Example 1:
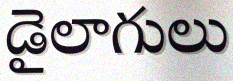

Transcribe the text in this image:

డైలాగులు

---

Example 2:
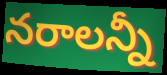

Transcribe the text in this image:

నరాలన్నీ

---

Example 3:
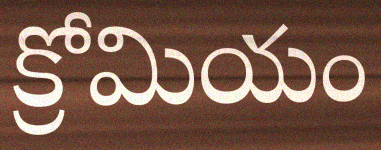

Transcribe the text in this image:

క్రోమియం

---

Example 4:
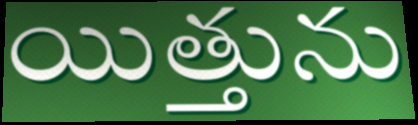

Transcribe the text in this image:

యిత్తును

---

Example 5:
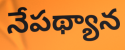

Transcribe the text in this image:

నేపథ్యాన